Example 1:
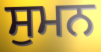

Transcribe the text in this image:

ਸੁਮਨ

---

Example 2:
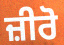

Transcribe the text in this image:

ਜ਼ੀਰੋ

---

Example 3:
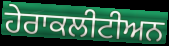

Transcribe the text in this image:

ਹੇਰਾਕਲੀਟੀਅਨ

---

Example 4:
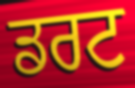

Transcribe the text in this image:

ਡਰਟ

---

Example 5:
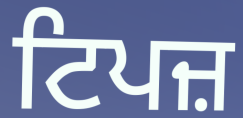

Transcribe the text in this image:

ਟਿਪਜ਼